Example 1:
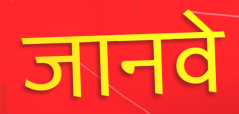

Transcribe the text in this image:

जानवे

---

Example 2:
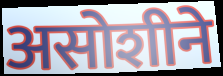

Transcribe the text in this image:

असोशीने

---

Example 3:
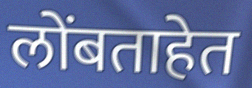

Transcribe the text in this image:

लोंबताहेत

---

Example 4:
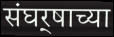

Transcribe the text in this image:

संघर्षाच्या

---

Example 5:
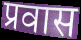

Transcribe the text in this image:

प्रवास